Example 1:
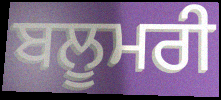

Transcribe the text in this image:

ਬਲੂਮਰੀ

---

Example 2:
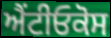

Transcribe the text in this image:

ਐਂਟੀਓਕੋਸ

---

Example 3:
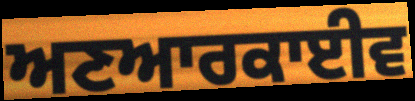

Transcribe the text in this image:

ਅਣਆਰਕਾਈਵ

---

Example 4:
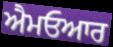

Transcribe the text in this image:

ਐਮਓਆਰ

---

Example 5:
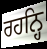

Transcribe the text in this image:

ਰਹਨ੍ਹਿ